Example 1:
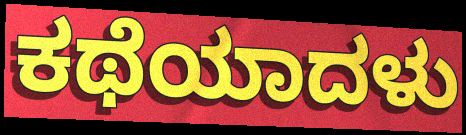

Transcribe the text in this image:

ಕಥೆಯಾದಳು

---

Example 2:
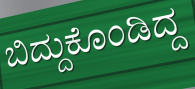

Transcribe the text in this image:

ಬಿದ್ದುಕೊಂಡಿದ್ದ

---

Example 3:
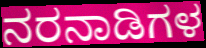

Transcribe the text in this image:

ನರನಾಡಿಗಳ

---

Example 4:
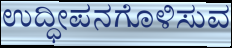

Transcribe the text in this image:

ಉದ್ಧೀಪನಗೊಳಿಸುವ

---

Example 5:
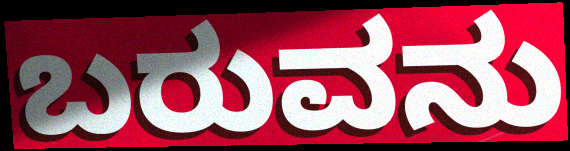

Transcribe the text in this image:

ಬರುವನು